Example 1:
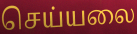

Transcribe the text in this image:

செய்யலை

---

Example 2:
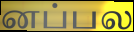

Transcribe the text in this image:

னப்பல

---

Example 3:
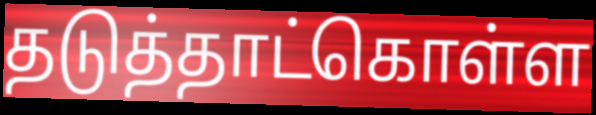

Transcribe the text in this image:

தடுத்தாட்கொள்ள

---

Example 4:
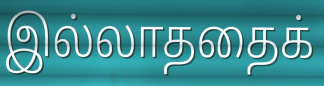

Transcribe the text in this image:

இல்லாததைக்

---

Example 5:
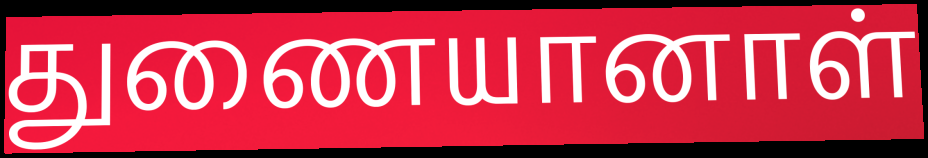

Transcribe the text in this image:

துணையானாள்